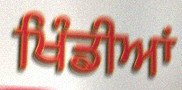
ਖਿੰਡੀਆਂ